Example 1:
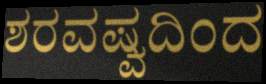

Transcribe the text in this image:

ಶರವಷ್ವದಿಂದ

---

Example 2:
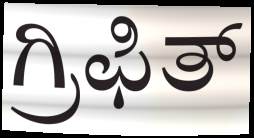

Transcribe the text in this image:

ಗ್ರಿಫಿತ್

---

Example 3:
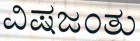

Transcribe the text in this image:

ವಿಷಜಂತು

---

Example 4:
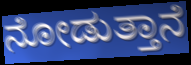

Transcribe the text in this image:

ನೋಡುತ್ತಾನೆ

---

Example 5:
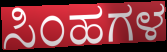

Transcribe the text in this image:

ಸಿಂಹಗಳ